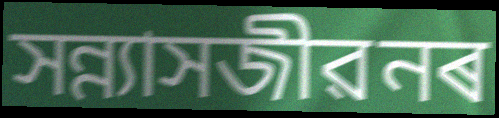
সন্ন্যাসজীৱনৰ